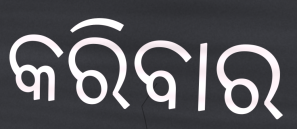
କରିବାର